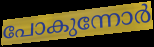
പോകുന്നോർ